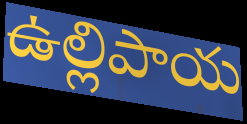
ఉల్లిపాయ